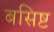
बसिष्ट